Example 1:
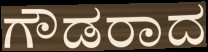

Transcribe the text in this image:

ಗೌಡರಾದ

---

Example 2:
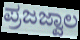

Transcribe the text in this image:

ಪ್ರಜಜ್ವಾಲ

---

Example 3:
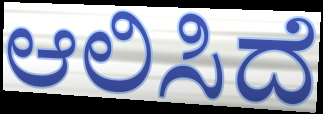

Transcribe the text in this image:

ಆಲಿಸಿದೆ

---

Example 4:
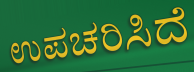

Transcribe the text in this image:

ಉಪಚರಿಸಿದೆ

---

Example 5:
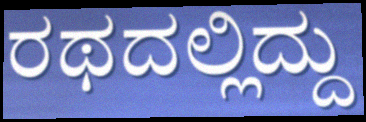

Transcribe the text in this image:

ರಥದಲ್ಲಿದ್ದು